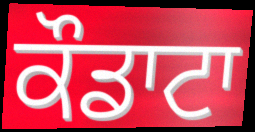
ਕੌਡਾਟਾ